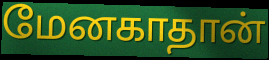
மேனகாதான்